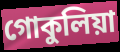
গোকুলিয়া